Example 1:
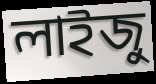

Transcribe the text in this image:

লাইজু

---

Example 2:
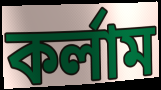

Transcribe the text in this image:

কর্লাম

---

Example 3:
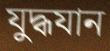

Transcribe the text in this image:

যুদ্ধযান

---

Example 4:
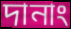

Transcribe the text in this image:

দানাং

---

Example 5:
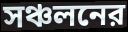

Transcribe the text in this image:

সঞ্চলনের